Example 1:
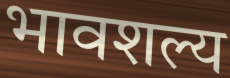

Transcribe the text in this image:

भावशल्य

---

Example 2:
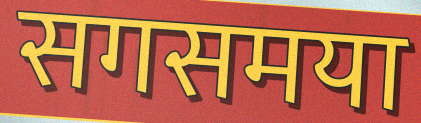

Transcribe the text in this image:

सगसमया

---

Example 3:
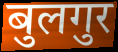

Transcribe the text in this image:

बुलगुर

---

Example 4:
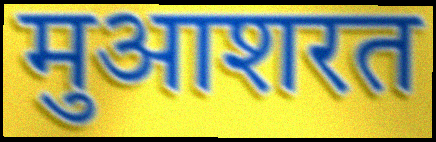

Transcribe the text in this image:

मुआशरत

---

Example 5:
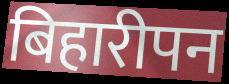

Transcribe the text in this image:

बिहारीपन